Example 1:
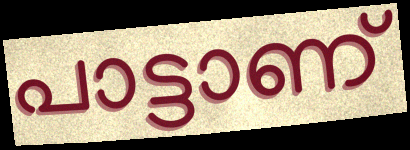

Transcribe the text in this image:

പാട്ടാണ്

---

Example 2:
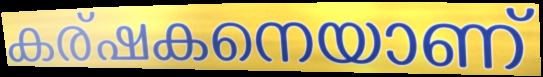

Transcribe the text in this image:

കര്ഷകനെയാണ്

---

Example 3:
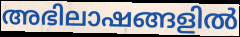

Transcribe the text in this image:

അഭിലാഷങ്ങളിൽ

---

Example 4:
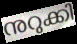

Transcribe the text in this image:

നുറുക്കി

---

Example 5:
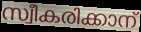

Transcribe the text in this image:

സ്വീകരിക്കാന്